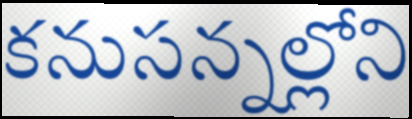
కనుసన్నల్లోని